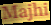
Majhi